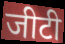
जीटी